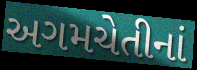
અગમચેતીનાં